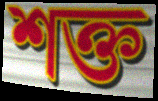
শক্ত